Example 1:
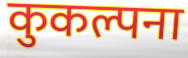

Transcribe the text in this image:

कुकल्पना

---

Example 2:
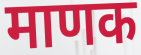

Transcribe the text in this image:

माणक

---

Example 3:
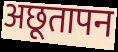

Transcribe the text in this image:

अछूतापन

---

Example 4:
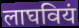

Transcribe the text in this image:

लाघवियं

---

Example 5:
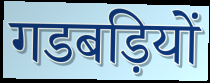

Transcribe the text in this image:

गडबड़ियों